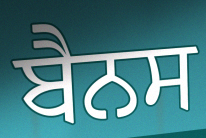
ਬੈਨਸ